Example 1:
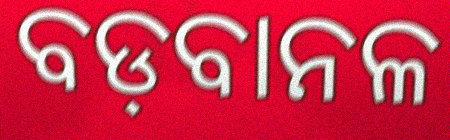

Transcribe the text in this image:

ବଡ଼ବାନଳ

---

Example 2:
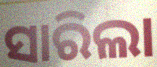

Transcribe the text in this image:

ସାରିଲା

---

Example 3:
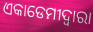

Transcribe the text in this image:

ଏକାଡେମୀଦ୍ୱାରା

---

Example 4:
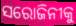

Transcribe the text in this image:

ସରୋଜିନୀକୁ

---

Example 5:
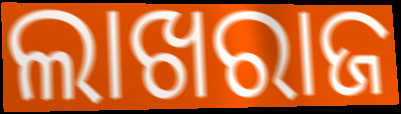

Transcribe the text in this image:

ଲାଖରାଜ